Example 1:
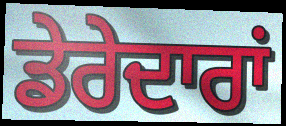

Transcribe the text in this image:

ਡੇਰੇਦਾਰਾਂ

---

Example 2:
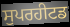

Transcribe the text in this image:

ਸੁਪਰਹੀਟਡ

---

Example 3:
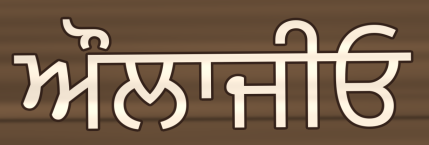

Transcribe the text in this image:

ਔਲਾਜੀਓ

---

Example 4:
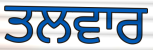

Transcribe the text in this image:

ਤਲਵਾਰ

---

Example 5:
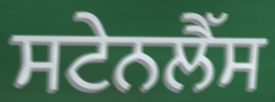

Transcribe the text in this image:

ਸਟੇਨਲੈੱਸ